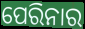
ପେରିନାର